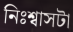
নিঃশ্বাসটা